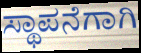
ಸ್ಥಾಪನೆಗಾಗಿ